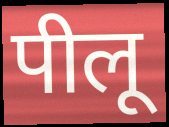
पीलू